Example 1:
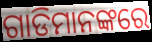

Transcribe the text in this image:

ଗାଡିମାନଙ୍କରେ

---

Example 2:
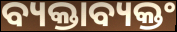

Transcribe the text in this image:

ବ୍ୟକ୍ତାବ୍ୟକ୍ତଂ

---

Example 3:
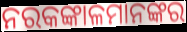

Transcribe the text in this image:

ନରକଙ୍କାଳମାନଙ୍କର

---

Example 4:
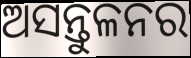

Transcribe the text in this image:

ଅସନ୍ତୁଳନର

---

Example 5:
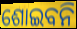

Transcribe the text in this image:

ଶୋଇବନି